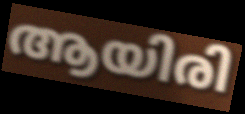
ആയിരി